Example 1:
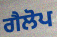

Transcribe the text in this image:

ਗੈਲੋਪ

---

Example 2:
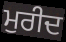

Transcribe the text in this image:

ਮੁਰੀਦ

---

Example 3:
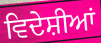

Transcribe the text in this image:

ਵਿਦੇਸ਼ੀਆਂ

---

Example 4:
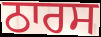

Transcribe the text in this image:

ਠਾਰਸ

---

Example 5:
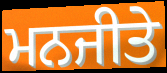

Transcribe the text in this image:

ਮਨਜੀਤੇ